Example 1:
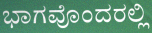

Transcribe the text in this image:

ಭಾಗವೊಂದರಲ್ಲಿ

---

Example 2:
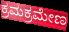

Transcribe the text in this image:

ಕ್ರಮಕ್ರಮೇಣ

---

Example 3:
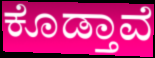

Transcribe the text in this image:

ಕೊಡ್ತಾವೆ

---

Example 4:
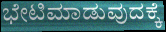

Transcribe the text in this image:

ಭೇಟಿಮಾಡುವುದಕ್ಕೆ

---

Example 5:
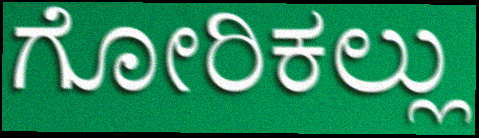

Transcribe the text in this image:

ಗೋರಿಕಲ್ಲು